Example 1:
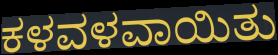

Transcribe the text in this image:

ಕಳವಳವಾಯಿತು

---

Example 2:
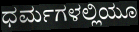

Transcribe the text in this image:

ಧರ್ಮಗಳಲ್ಲಿಯೂ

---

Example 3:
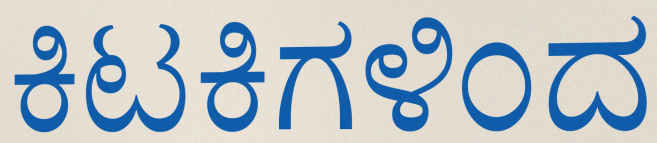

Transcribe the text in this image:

ಕಿಟಕಿಗಳಿಂದ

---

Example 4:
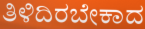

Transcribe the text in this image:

ತಿಳಿದಿರಬೇಕಾದ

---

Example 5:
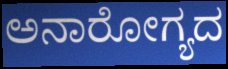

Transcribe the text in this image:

ಅನಾರೋಗ್ಯದ